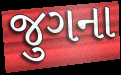
જુગના